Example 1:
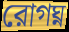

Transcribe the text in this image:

রোগঘ্ন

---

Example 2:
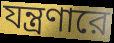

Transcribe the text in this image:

যন্ত্রণারে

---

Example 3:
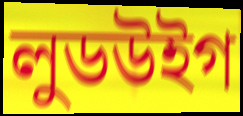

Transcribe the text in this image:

লুডউইগ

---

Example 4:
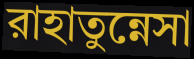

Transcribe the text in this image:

রাহাতুন্নেসা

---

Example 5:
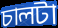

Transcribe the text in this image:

চালটা